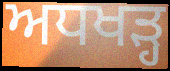
ਅਧਖੜ੍ਹ